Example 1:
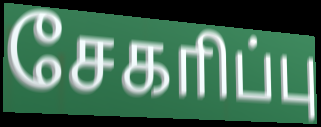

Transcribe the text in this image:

சேகரிப்பு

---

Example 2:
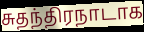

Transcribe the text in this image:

சுதந்திரநாடாக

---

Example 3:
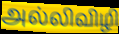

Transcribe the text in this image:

அல்லிவிழி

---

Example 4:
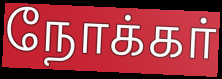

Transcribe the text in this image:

நோக்கர்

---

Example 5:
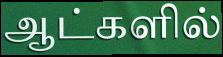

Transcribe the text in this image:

ஆட்களில்